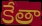
కేతా